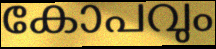
കോപവും